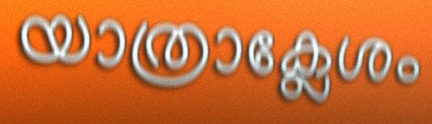
യാത്രാക്ലേശം